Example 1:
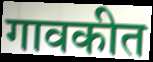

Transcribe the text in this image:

गावकीत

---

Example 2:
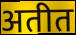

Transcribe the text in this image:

अतीत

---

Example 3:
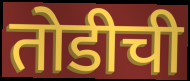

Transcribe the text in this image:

तोडीची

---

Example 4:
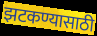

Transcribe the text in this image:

झटकण्यासाठी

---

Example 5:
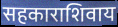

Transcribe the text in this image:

सहकाराशिवाय